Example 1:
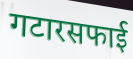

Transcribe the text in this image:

गटारसफाई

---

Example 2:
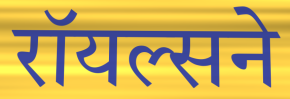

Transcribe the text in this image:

रॉयल्सने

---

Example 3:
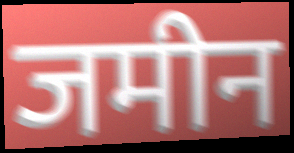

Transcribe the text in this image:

जमीन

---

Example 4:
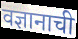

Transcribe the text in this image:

वज्ञानाची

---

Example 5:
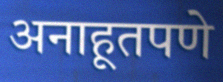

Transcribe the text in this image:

अनाहूतपणे